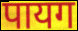
पायग